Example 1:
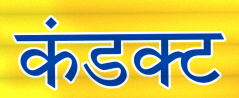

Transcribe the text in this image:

कंडक्ट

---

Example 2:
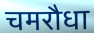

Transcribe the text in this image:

चमरौधा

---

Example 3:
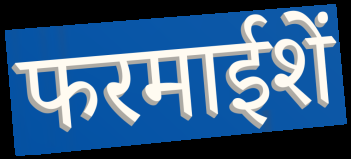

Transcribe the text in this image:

फरमाईशें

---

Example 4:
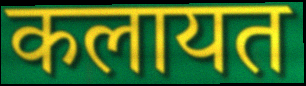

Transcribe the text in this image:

कलायत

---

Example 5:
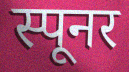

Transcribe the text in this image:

स्पूनर